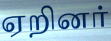
ஏறினர்